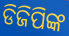
ଡିଜିପିଙ୍କ